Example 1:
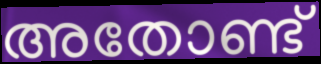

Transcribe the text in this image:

അതോണ്ട്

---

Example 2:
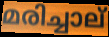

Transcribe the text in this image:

മരിച്ചാല്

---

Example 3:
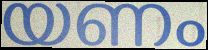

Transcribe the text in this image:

യണം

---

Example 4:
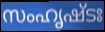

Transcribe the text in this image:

സംഹൃഷ്ടഃ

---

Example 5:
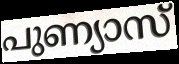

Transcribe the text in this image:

പുണ്യാസ്